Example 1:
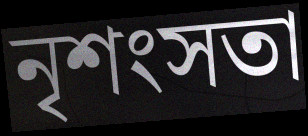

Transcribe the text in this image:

নৃশংসতা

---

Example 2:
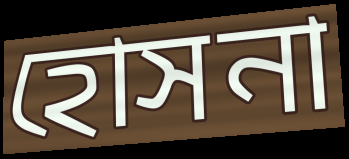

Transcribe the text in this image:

হোসনা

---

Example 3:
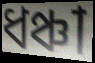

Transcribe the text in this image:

ধঞ্চা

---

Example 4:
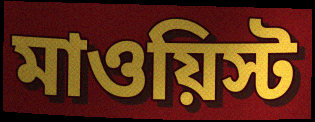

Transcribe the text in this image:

মাওয়িস্ট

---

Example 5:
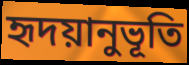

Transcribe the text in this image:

হৃদয়ানুভূতি